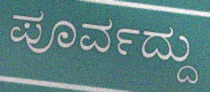
ಪೂರ್ವದ್ದು